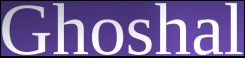
Ghoshal